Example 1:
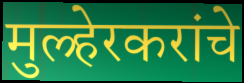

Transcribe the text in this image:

मुल्हेरकरांचे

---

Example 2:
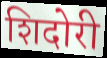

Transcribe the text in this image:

शिदोरी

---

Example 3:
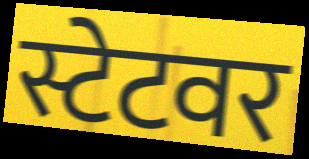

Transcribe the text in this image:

स्टेटवर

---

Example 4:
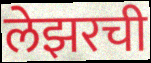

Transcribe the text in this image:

लेझरची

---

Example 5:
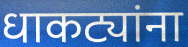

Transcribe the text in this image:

धाकट्यांना